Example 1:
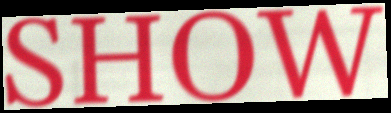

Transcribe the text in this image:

SHOW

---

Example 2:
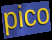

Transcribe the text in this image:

pico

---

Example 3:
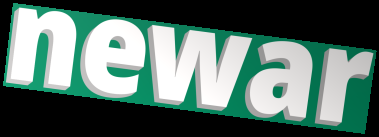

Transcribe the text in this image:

newar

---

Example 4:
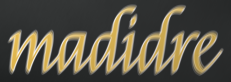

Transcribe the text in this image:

madidre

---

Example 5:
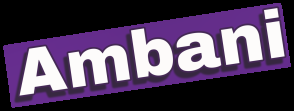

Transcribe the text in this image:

Ambani